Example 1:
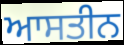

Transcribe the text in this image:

ਆਸਤੀਨ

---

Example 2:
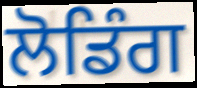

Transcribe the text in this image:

ਲੋਡਿੰਗ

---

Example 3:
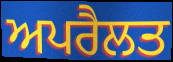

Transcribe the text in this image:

ਅਪਰੈਲਤ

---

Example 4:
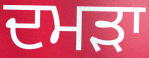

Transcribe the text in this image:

ਦਮੜਾ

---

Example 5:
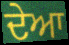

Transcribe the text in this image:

ਦੇਆ